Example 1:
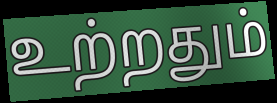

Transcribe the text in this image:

உற்றதும்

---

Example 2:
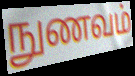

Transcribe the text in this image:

நுணவம்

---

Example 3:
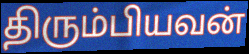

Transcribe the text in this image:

திரும்பியவன்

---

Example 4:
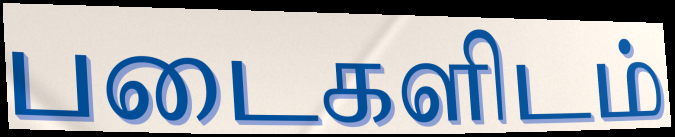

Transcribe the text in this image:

படைகளிடம்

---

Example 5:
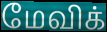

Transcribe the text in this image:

மேவிக்